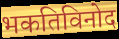
भकतिविनोद